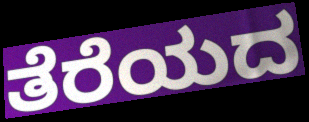
ತೆರೆಯದ